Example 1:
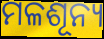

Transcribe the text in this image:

ମଳଶୂନ୍ୟ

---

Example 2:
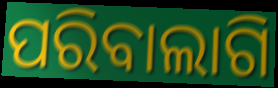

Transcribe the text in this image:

ପରିବାଲାଗି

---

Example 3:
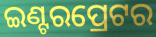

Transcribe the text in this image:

ଇଣ୍ଟରପ୍ରେଟର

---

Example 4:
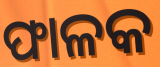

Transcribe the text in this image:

ଫାଳକ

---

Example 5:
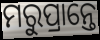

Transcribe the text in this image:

ମରୁପ୍ରାନ୍ତେ